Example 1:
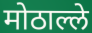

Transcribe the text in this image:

मोठाल्ले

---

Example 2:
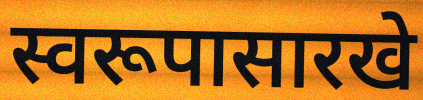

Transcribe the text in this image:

स्वरूपासारखे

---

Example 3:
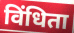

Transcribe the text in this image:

विंधिता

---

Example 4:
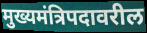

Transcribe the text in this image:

मुख्यमंत्रिपदावरील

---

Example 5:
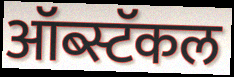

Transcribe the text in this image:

ऑब्स्टॅकल